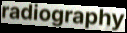
radiography